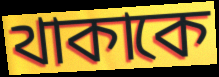
থাকাকে